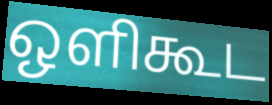
ஒளிகூட